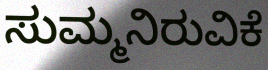
ಸುಮ್ಮನಿರುವಿಕೆ